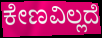
ಕೇಣವಿಲ್ಲದೆ